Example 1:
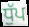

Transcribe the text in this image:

ਧੁੱਪ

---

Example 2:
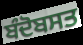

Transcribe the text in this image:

ਬੰਦੋਬਸਤ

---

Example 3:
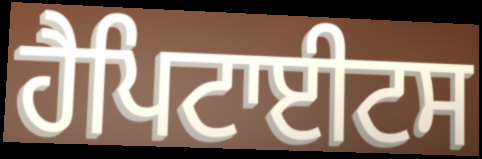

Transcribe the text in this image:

ਹੈਪਿਟਾਈਟਸ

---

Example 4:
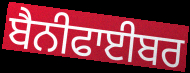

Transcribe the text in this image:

ਬੈਨੀਫਾਈਬਰ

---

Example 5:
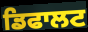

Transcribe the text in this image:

ਡਿਫਾਲਟ